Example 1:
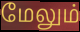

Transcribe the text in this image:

மேலும்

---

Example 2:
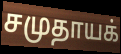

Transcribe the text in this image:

சமுதாயக்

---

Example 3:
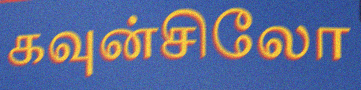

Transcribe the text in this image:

கவுன்சிலோ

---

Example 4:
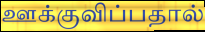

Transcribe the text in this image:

ஊக்குவிப்பதால்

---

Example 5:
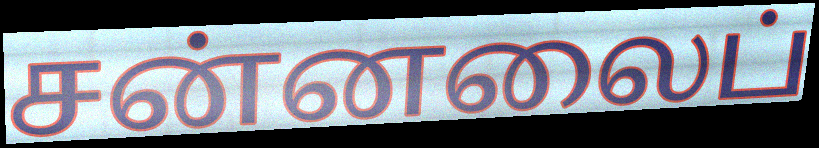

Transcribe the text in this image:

சன்னலைப்